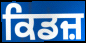
ਕਿਡਜ਼